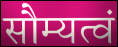
सौम्यत्वं